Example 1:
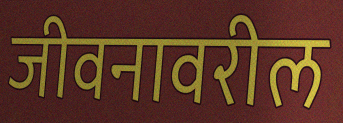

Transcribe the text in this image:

जीवनावरील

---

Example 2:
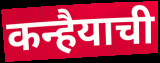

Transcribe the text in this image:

कन्हैयाची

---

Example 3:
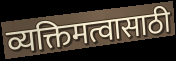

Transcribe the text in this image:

व्यक्तिमत्वासाठी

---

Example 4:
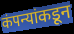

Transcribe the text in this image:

कंपन्यांकडून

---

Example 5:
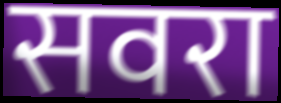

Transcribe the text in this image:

सवरा